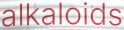
alkaloids